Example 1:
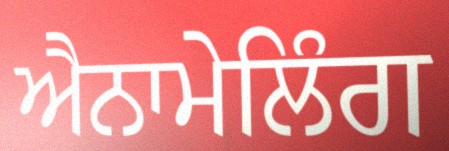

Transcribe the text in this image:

ਐਨਾਮੇਲਿੰਗ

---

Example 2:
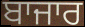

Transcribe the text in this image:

ਬਾਜਾਰ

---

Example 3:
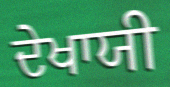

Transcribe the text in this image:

ਦੇਖਾਯੀ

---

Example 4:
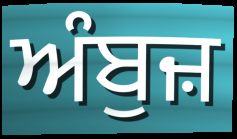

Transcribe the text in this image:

ਅੰਬੁਜ਼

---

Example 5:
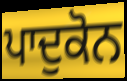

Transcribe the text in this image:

ਪਾਦੁਕੋਨ